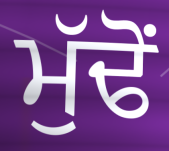
ਮੁੱਢੋਂ